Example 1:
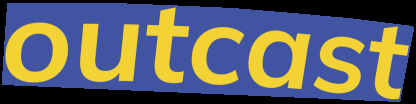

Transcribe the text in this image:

outcast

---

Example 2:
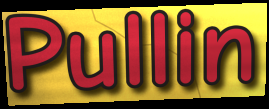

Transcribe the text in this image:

Pullin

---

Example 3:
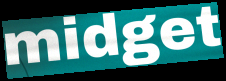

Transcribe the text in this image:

midget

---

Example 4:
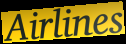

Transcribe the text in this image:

Airlines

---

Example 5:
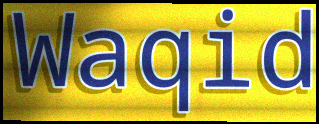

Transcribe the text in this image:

Waqid